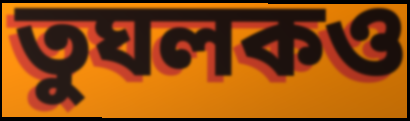
তুঘলকও